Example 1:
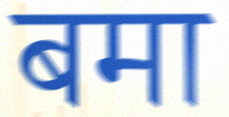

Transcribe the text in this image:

बमा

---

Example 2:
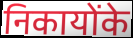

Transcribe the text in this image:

निकायोंके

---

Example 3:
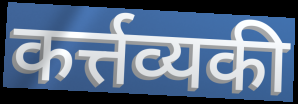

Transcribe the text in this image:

कर्त्तव्यकी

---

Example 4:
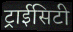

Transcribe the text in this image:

ट्राईसिटी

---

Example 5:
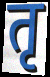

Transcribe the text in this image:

तृ